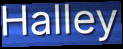
Halley